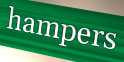
hampers